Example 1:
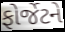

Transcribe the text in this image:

ફોર્જેટને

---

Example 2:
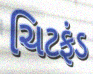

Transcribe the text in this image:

ચિટફંડ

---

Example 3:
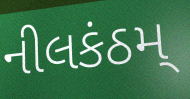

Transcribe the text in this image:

નીલકંઠમ્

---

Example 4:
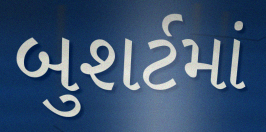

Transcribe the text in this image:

બુશર્ટમાં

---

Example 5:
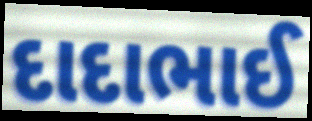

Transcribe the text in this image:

દાદાભાઈ